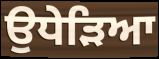
ਉਧੇੜਿਆ